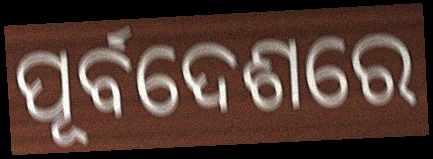
ପୂର୍ବଦେଶରେ